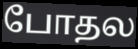
போதல